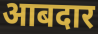
आबदार